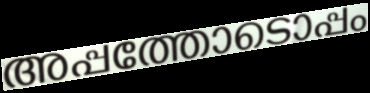
അപ്പത്തോടൊപ്പം